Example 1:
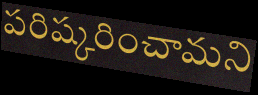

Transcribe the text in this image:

పరిష్కరించామని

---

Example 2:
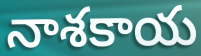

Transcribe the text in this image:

నాశకాయ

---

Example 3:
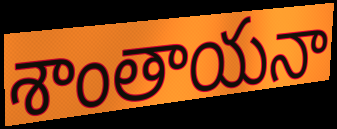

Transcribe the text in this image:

శాంతాయనా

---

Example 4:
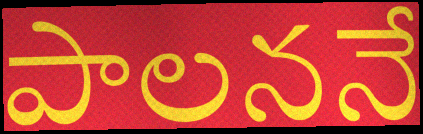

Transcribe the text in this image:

పాలననే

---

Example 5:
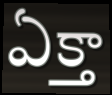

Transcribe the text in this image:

ఏక్తా